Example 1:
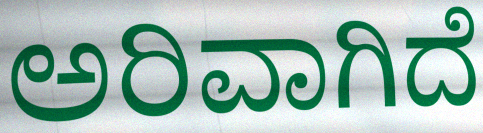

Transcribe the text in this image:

ಅರಿವಾಗಿದೆ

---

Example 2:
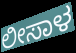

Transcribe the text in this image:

ಲೀಸಾಳ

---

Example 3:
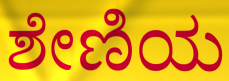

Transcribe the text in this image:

ಶೇಣಿಯ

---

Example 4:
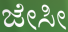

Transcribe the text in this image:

ಜೇಸೀ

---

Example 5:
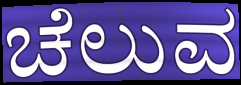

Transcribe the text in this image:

ಚೆಲುವ